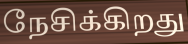
நேசிக்கிறது